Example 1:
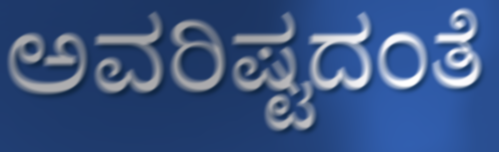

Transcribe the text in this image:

ಅವರಿಷ್ಟದಂತೆ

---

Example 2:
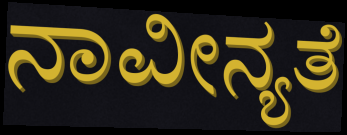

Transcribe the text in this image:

ನಾವೀನ್ಯತೆ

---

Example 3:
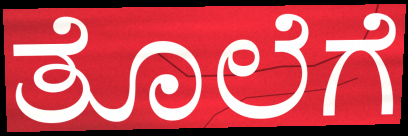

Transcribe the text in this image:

ತೊಲೆಗೆ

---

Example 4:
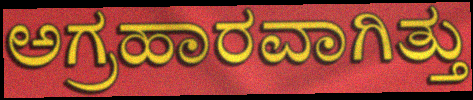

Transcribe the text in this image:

ಅಗ್ರಹಾರವಾಗಿತ್ತು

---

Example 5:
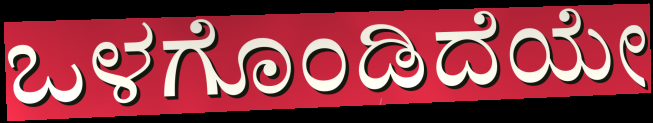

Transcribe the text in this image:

ಒಳಗೊಂಡಿದೆಯೇ